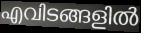
എവിടങ്ങളിൽ